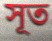
সূত